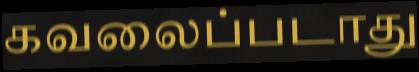
கவலைப்படாது